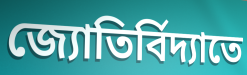
জ্যোতির্বিদ্যাতে